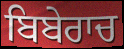
ਬਿਬੇਰਾਚ